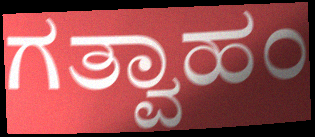
ಗತ್ವಾಹಂ